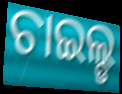
ଚାଇଲ୍ଡ